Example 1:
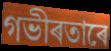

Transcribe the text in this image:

গভীৰতাৰে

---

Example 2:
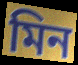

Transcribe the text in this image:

মিন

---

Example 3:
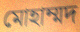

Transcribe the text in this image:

মোহাম্মদ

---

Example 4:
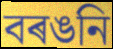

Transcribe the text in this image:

বৰঙনি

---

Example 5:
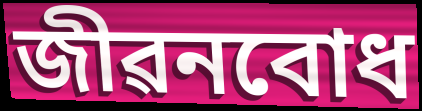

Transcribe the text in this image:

জীৱনবোধ